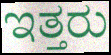
ಇತ್ತರು